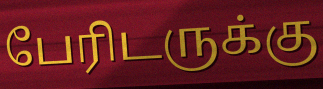
பேரிடருக்கு